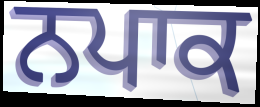
ਨਪਾਕ